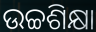
ଉଚ୍ଚଶିକ୍ଷା